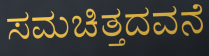
ಸಮಚಿತ್ತದವನೆ